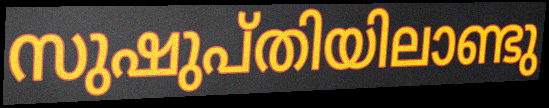
സുഷുപ്തിയിലാണ്ടു